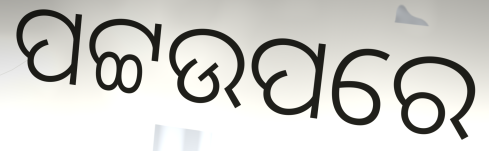
ପଟ୍ଟଉପରେ